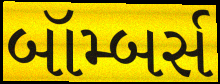
બૉમ્બર્સ